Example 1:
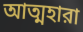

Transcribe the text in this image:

আত্মহারা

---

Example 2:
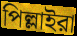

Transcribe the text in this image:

পিল্লাইরা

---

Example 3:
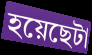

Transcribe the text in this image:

হয়েছেটা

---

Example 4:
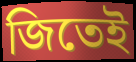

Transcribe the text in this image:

জিতেই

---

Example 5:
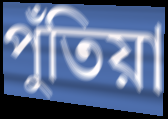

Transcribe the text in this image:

পুঁতিয়া